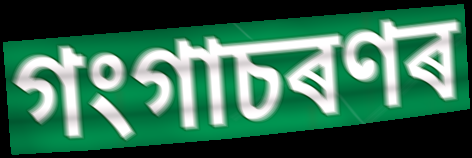
গংগাচৰণৰ